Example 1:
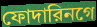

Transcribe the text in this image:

ফোদারিনগে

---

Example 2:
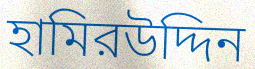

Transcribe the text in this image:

হামিরউদ্দিন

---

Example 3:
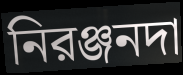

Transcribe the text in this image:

নিরঞ্জনদা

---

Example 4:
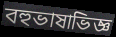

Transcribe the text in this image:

বহুভাষাভিজ্ঞ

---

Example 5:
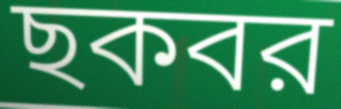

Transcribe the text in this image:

ছকবর